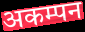
अकम्पन